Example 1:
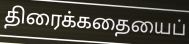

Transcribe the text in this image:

திரைக்கதையைப்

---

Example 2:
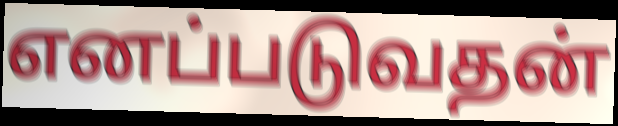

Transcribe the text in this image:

எனப்படுவதன்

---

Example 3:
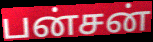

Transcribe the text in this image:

பன்சன்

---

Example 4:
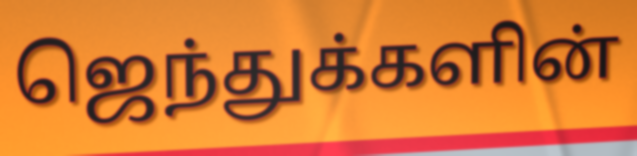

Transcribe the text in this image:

ஜெந்துக்களின்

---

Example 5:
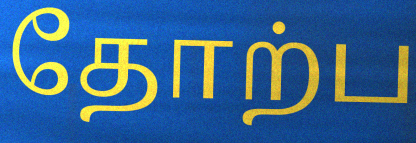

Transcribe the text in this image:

தோற்ப